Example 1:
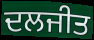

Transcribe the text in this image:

ਦਲਜੀਤ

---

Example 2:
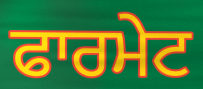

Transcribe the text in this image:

ਫਾਰਮੇਟ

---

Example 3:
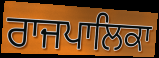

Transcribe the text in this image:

ਰਾਜਪਾਲਿਕਾ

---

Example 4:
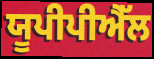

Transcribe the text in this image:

ਯੂਪੀਪੀਐੱਲ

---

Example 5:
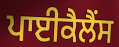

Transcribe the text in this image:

ਪਾਈਕੈਲੈਂਸ